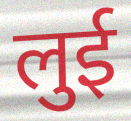
लुई